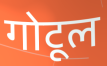
गोटूल